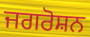
ਜਗਰੋਸ਼ਨ